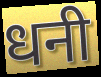
धनी